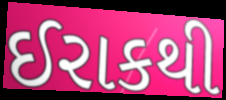
ઈરાકથી